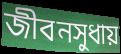
জীবনসুধায়